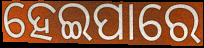
ହେଇପାରେ